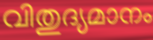
വിതുദ്യമാനം